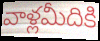
వాళ్లమీదికి